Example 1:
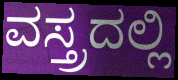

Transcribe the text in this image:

ವಸ್ತ್ರದಲ್ಲಿ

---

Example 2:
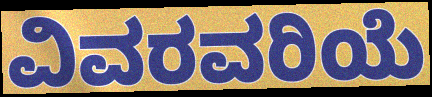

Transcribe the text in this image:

ವಿವರವರಿಯೆ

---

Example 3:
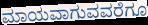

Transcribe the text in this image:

ಮಾಯವಾಗುವವರೆಗೂ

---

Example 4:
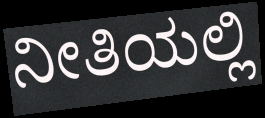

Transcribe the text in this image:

ನೀತಿಯಲ್ಲಿ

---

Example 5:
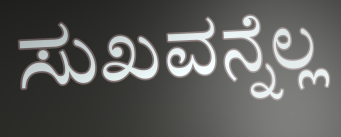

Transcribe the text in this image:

ಸುಖವನ್ನೆಲ್ಲ